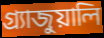
গ্র্যাজুয়ালি